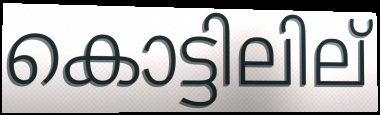
കൊട്ടിലില്